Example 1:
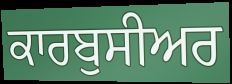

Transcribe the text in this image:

ਕਾਰਬੁਸੀਅਰ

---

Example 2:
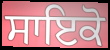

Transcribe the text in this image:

ਸਾਇਕੋ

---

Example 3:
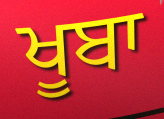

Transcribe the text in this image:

ਖੂਬਾ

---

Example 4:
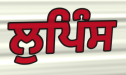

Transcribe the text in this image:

ਲੁਪਿੰਸ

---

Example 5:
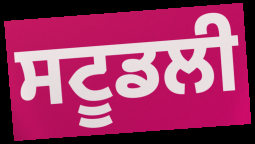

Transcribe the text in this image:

ਸਟੂਡਲੀ